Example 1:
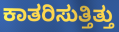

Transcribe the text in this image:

ಕಾತರಿಸುತ್ತಿತ್ತು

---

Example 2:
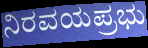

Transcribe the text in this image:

ನಿರವಯಪ್ರಭು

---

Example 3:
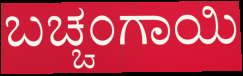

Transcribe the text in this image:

ಬಚ್ಚಂಗಾಯಿ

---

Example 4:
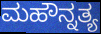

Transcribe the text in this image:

ಮಹೌನ್ನತ್ಯ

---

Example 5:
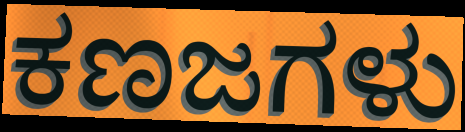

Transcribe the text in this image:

ಕಣಜಗಳು